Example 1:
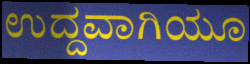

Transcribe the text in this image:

ಉದ್ದವಾಗಿಯೂ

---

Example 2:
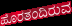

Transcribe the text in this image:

ಹೊರತಂದಿರುವ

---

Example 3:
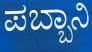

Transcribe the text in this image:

ಪಬ್ಬಾನಿ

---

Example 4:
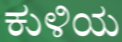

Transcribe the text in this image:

ಕುಳಿಯ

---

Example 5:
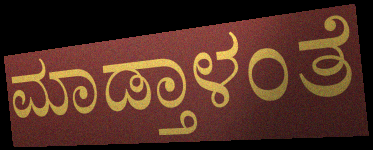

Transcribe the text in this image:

ಮಾಡ್ತಾಳಂತೆ